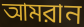
আমরান